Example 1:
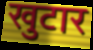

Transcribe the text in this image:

खुटार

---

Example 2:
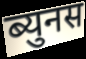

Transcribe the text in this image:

ब्युनस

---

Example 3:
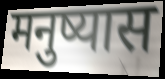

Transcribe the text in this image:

मनुष्यास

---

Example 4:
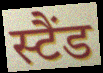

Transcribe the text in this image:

स्‍टैंड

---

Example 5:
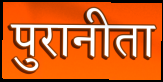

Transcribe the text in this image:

पुरानीता